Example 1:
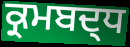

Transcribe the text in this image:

ਕ੍ਰਮਬਦ੍ਧ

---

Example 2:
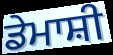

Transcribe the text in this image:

ਡੇਮਾਸ਼ੀ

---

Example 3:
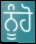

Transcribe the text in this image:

ਨੂੰਹੋ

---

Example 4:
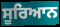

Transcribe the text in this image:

ਸੂਰਿਆਨ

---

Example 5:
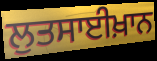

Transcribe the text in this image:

ਲੁਤਸਾਈਖ਼ਾਨ